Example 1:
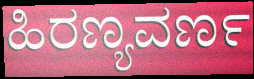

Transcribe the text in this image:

ಹಿರಣ್ಯವರ್ಣ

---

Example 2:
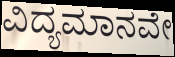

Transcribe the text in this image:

ವಿದ್ಯಮಾನವೇ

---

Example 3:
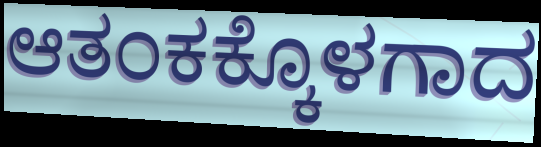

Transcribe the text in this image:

ಆತಂಕಕ್ಕೊಳಗಾದ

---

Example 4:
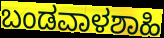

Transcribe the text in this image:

ಬಂಡವಾಳಶಾಹಿ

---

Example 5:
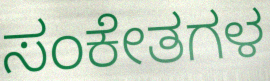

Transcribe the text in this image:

ಸಂಕೇತಗಳ